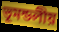
ভূমন্ডলীয়